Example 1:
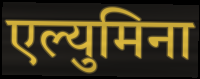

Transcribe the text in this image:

एल्युमिना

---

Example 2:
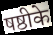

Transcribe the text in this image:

षष्ठीके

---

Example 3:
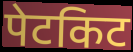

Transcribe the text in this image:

पेटकिट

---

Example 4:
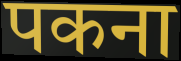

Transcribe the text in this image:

पकना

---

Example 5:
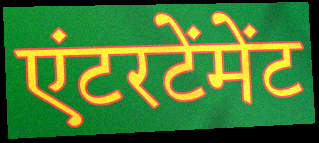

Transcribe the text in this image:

एंटरटेंमेंट